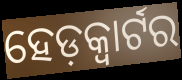
ହେଡ଼କ୍ୱାର୍ଟର